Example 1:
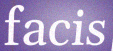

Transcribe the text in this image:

facis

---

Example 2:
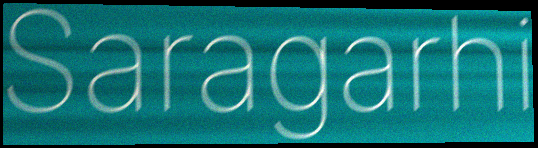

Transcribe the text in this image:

Saragarhi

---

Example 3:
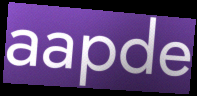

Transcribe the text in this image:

aapde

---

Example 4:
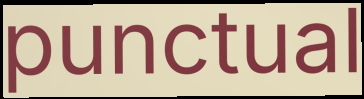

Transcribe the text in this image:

punctual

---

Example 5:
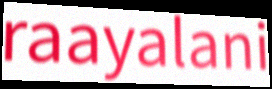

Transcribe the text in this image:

raayalani